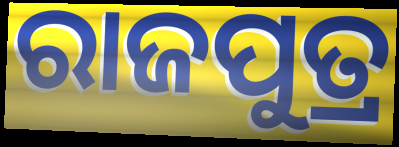
ରାଜପୁତ୍ର